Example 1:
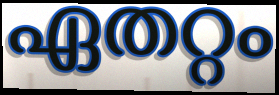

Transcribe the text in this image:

ഏതറ്റം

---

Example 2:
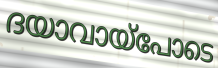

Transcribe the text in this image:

ദയാവായ്പോടെ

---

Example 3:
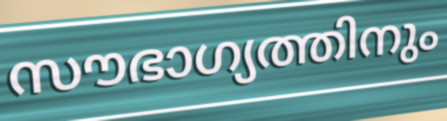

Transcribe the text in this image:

സൗഭാഗ്യത്തിനും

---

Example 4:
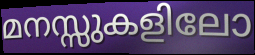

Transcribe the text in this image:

മനസ്സുകളിലോ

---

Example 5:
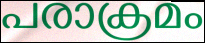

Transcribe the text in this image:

പരാക്രമം